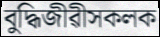
বুদ্ধিজীৱীসকলক